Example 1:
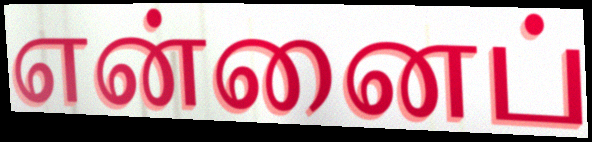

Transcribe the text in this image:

என்னைப்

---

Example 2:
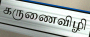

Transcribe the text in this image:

கருணைவிழி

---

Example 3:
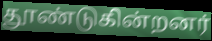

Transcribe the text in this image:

தூண்டுகின்றனர்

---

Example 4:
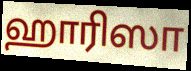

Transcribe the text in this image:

ஹாரிஸா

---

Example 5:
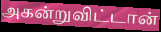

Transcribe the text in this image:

அகன்றுவிட்டான்